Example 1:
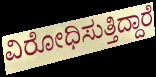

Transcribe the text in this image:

ವಿರೋಧಿಸುತ್ತಿದ್ದಾರೆ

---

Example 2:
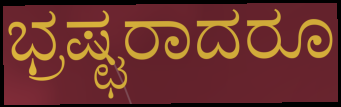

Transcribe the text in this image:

ಭ್ರಷ್ಟರಾದರೂ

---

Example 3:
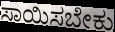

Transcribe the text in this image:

ಸಾಯಿಸಬೇಕು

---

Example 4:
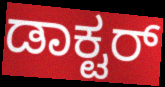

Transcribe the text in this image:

ಡಾಕ್ಟರ್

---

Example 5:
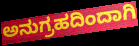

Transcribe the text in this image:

ಅನುಗ್ರಹದಿಂದಾಗಿ